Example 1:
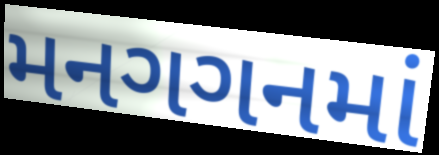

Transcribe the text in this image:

મનગગનમાં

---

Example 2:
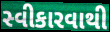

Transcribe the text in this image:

સ્વીકારવાથી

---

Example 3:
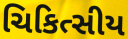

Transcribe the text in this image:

ચિકિત્સીય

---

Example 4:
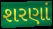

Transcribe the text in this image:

શરણાં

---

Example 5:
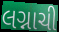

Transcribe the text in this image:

લગ્નાચી